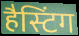
हैस्टिंग